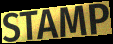
STAMP